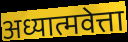
अध्यात्मवेत्ता